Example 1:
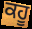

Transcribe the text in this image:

ਕਹੂ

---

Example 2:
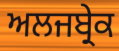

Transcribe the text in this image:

ਅਲਜਬ੍ਰੇਕ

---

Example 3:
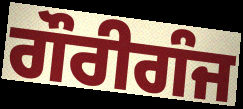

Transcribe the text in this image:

ਗੌਰੀਗੰਜ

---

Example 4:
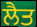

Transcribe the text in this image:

ਲੈਤ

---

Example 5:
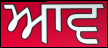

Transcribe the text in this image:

ਆਵ